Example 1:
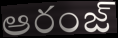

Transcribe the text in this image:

ఆరంజ్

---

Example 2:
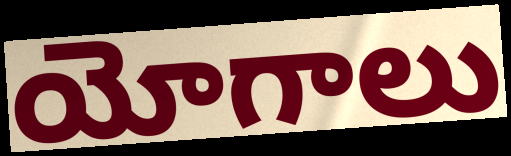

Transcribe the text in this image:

యోగాలు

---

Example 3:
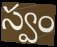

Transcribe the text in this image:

స్వం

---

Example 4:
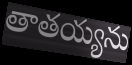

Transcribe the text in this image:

తాతయ్యను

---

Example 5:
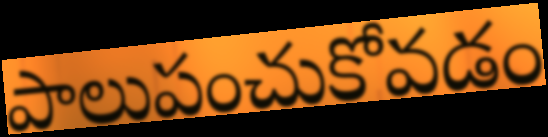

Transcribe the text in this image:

పాలుపంచుకోవడం